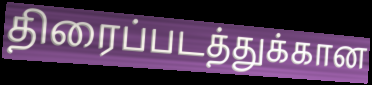
திரைப்படத்துக்கான